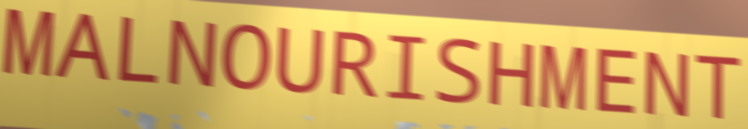
MALNOURISHMENT